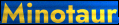
Minotaur